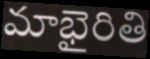
మాభైరితి